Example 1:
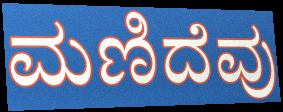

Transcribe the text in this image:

ಮಣಿದೆವು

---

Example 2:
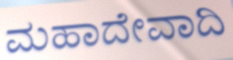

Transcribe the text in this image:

ಮಹಾದೇವಾದಿ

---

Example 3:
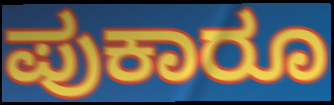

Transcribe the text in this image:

ಪುಕಾರೂ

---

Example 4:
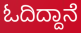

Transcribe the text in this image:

ಓದಿದ್ದಾನೆ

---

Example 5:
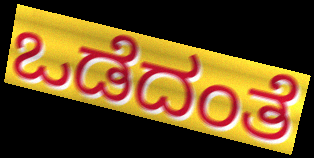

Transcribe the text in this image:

ಒಡೆದಂತೆ